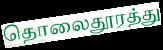
தொலைதூரத்து